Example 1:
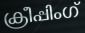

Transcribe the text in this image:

ക്രീപ്പിംഗ്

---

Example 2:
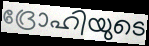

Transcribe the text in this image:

ദ്രോഹിയുടെ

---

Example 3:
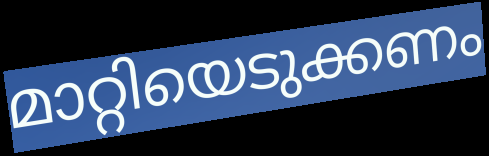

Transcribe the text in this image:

മാറ്റിയെടുക്കണം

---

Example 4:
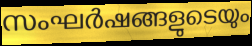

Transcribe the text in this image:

സംഘർഷങ്ങളുടെയും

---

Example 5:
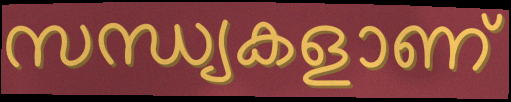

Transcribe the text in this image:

സന്ധ്യകളാണ്